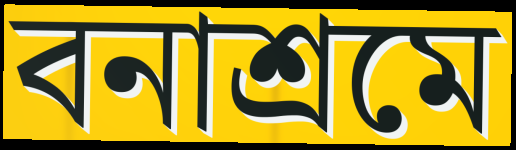
বনাশ্রমে